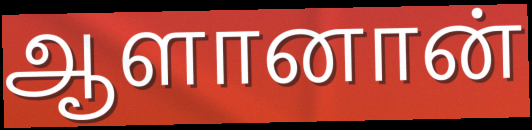
ஆளானான்